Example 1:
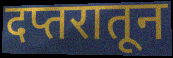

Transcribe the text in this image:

दप्तरातून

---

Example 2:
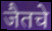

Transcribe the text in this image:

जैतचे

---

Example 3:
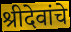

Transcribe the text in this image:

श्रीदेवांचे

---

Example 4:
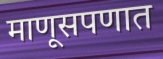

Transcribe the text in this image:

माणूसपणात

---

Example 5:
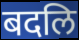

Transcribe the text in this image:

बदलि